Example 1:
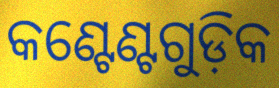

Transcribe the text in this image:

କଣ୍ଟେଣ୍ଟଗୁଡ଼ିକ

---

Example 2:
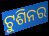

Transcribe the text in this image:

ଟୁଶିନର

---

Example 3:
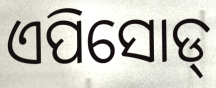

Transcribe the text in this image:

ଏପିସୋଡ୍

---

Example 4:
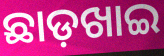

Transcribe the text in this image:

ଛାଡ଼ଖାଇ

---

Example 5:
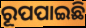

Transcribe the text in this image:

ରୂପପାଇଛି